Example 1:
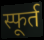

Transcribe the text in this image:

स्फूर्त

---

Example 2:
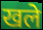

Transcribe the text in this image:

खले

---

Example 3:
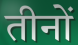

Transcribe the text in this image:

तीनों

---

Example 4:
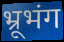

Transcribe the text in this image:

भ्रूभंग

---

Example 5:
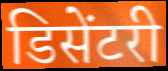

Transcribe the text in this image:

डिसेंटरी